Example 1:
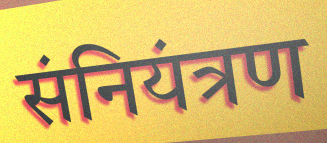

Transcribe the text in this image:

संनियंत्रण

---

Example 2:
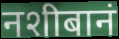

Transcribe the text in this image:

नशीबानं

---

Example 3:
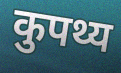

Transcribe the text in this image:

कुपथ्य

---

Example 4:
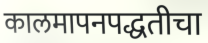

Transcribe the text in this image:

कालमापनपद्धतीचा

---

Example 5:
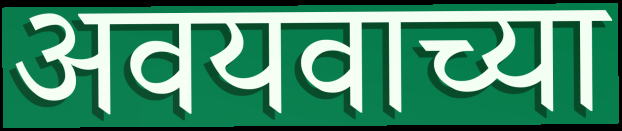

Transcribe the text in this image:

अवयवाच्या